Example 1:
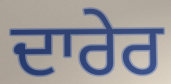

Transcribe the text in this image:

ਦਾਰੇਰ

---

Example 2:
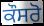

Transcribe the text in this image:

ਕੌਸਰੋ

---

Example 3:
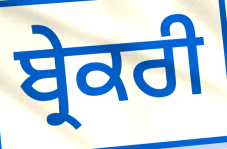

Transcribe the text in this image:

ਬ੍ਰੇਕਰੀ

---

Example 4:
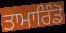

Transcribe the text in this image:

ਤਾਮਾਰਿੰਡੋ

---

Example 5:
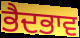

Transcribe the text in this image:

ਭੈਦਭਾਵ